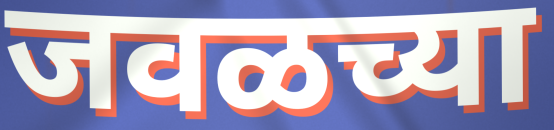
जवळच्या